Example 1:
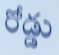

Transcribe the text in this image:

రోడ్డు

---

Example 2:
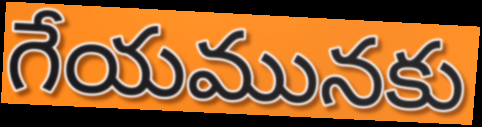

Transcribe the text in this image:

గేయమునకు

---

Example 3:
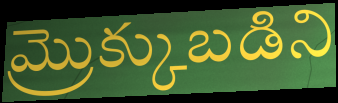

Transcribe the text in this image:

మ్రొక్కుబడిని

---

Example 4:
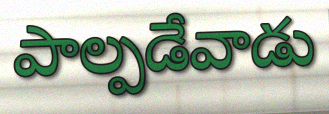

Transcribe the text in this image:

పాల్పడేవాడు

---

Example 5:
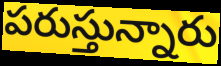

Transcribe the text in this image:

పరుస్తున్నారు